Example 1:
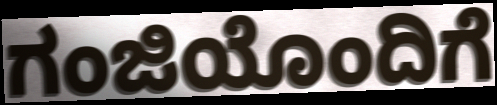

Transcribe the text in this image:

ಗಂಜಿಯೊಂದಿಗೆ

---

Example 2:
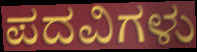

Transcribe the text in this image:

ಪದವಿಗಳು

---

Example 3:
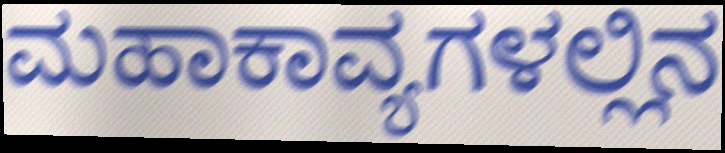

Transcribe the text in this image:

ಮಹಾಕಾವ್ಯಗಳಲ್ಲಿನ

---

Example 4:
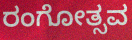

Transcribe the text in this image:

ರಂಗೋತ್ಸವ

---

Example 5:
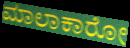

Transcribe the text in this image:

ಮಾಲಾಕಾರೋ